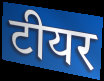
टीयर